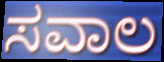
ಸವಾಲ